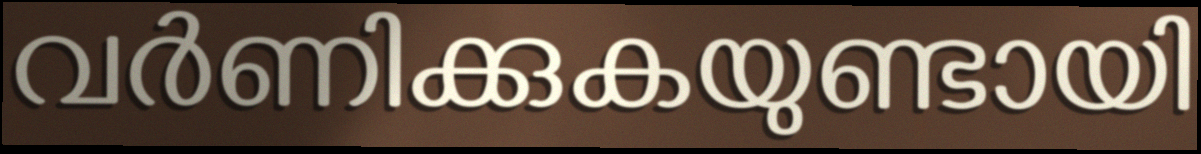
വർണിക്കുകയുണ്ടായി